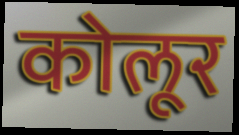
कोलूर